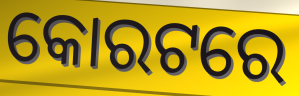
କୋରଟରେ